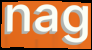
nag